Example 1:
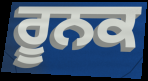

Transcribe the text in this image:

ਰੂਨਕ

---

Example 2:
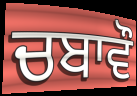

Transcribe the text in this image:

ਚਬਾਵੌ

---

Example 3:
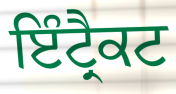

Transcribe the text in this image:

ਇੰਟ੍ਰੈਕਟ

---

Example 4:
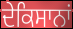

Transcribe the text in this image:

ਦੇਕਿਸਾਨਾਂ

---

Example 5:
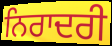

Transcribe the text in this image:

ਨਿਰਾਦਰੀ